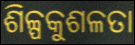
ଶିଳ୍ପକୁଶଳତା